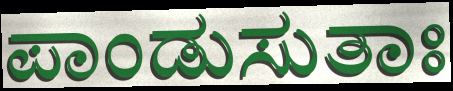
ಪಾಂಡುಸುತಾಃ